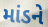
માંડને